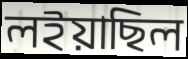
লইয়াছিল